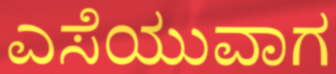
ಎಸೆಯುವಾಗ